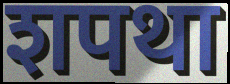
शपथा